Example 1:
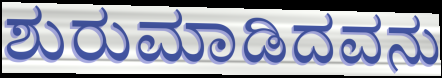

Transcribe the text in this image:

ಶುರುಮಾಡಿದವನು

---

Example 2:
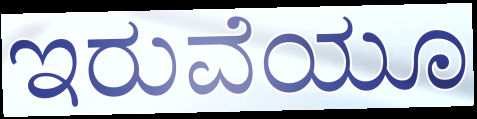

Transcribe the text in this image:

ಇರುವೆಯೂ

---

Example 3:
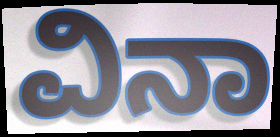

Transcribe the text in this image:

ವಿನಾ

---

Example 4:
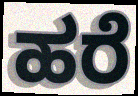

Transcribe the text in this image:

ಹರೆ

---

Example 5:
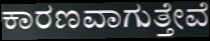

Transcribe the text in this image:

ಕಾರಣವಾಗುತ್ತೇವೆ